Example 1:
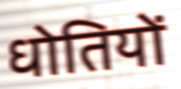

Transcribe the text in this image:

धोतियों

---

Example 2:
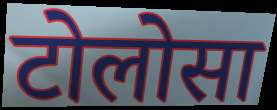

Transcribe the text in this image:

टोलोसा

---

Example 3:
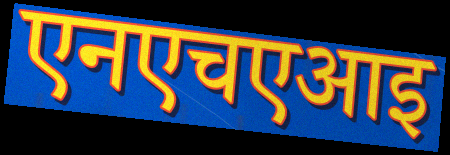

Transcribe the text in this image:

एनएचएआइ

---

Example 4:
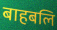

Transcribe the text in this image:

बाहबलि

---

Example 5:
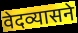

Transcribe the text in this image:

वेदव्यासने